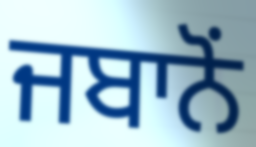
ਜਬਾਨੋਂ